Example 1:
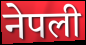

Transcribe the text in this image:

नेपली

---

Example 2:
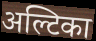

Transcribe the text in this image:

अल्टिका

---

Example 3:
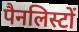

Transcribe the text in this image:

पैनलिस्टों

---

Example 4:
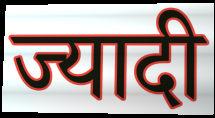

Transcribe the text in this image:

ज्यादी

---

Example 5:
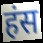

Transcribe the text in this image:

हंस